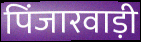
पिंजारवाड़ी